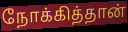
நோக்கித்தான்